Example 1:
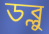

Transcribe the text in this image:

ডব্লু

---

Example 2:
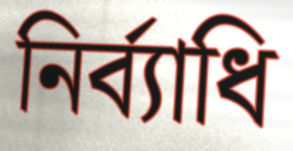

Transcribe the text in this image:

নির্ব্যাধি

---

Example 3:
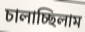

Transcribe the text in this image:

চালাচ্ছিলাম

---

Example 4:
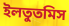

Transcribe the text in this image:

ইলতুতমিস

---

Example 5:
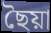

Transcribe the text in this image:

ছৈয়া